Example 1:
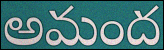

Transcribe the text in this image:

అమంద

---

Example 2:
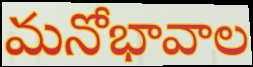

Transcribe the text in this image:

మనోభావాల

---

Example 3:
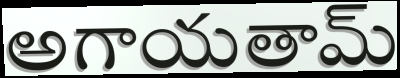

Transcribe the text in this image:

అగాయతామ్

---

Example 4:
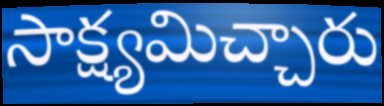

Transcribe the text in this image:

సాక్ష్యమిచ్చారు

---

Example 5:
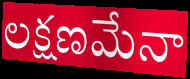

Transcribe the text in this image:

లక్షణమేనా